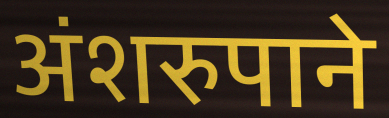
अंशरुपाने